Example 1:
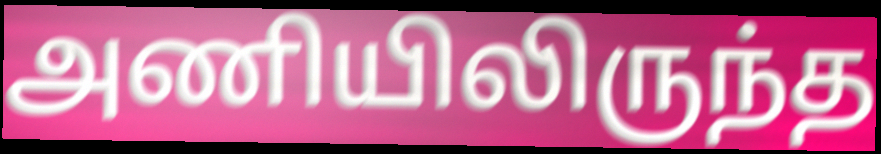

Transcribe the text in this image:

அணியிலிருந்த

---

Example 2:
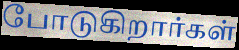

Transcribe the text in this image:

போடுகிறார்கள்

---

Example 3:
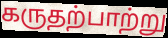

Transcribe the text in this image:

கருதற்பாற்று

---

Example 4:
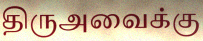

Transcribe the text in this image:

திருஅவைக்கு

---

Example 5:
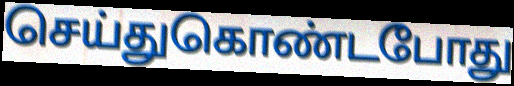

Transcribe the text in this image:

செய்துகொண்டபோது